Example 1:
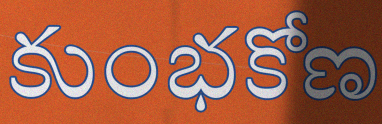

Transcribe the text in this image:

కుంభకోణ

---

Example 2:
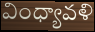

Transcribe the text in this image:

వింధ్యావళి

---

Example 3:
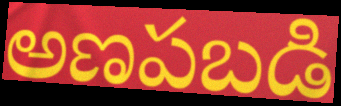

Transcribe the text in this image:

అణపబడి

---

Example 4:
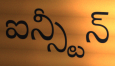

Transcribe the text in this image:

ఐన్స్టీన్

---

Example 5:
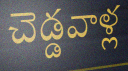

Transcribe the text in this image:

చెడ్డవాళ్ల